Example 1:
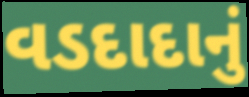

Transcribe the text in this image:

વડદાદાનું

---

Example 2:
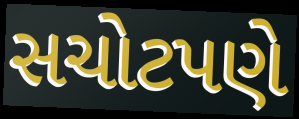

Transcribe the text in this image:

સચોટપણે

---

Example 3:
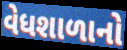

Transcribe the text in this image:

વેધશાળાનો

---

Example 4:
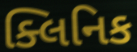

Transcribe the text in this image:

ક્લિનિક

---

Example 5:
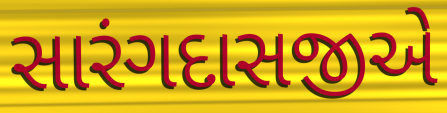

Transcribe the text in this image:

સારંગદાસજીએ